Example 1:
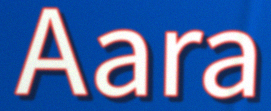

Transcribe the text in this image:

Aara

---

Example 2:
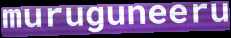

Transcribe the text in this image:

muruguneeru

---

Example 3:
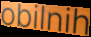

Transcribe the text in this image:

obilnih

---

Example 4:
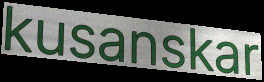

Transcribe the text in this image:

kusanskar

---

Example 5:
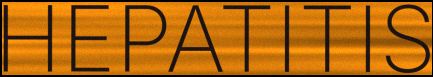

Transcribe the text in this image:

HEPATITIS